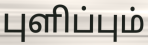
புளிப்பும்